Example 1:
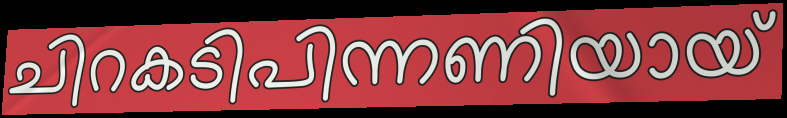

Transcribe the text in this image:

ചിറകടിപിന്നണിയായ്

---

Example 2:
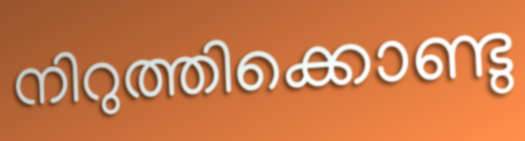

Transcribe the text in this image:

നിറുത്തിക്കൊണ്ടു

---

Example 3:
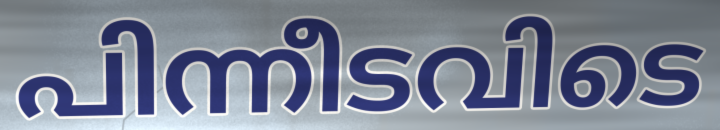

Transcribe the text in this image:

പിന്നീടവിടെ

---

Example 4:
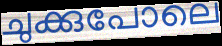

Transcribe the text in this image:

ചുക്കുപോലെ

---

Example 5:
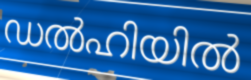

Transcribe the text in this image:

ഡൽഹിയിൽ